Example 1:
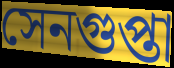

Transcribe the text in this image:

সেনগুপ্তা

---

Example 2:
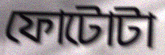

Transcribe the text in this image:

ফোটোটা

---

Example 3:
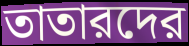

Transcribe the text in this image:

তাতারদের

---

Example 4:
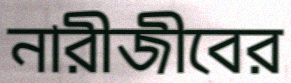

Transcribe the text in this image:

নারীজীবের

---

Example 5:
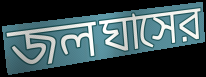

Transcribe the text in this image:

জলঘাসের